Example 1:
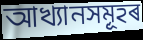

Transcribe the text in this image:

আখ্যানসমূহৰ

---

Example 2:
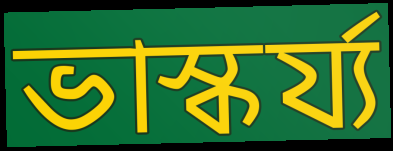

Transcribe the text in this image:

ভাস্কৰ্য্য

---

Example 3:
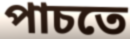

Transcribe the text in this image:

পাচতে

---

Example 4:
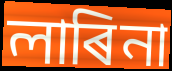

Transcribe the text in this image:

লাৰিনা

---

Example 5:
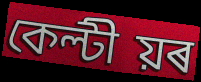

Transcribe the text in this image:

কেল্টীয়ৰ